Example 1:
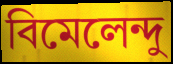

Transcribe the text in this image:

বিমেলেন্দু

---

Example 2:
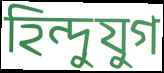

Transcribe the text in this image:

হিন্দুযুগ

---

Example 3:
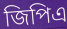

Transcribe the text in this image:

জিপিএ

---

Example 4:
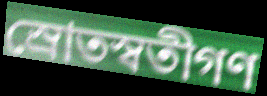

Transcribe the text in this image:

স্রোতস্বতীগণ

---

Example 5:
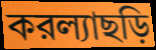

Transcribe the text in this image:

করল্যাছড়ি